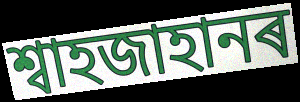
শ্বাহজাহানৰ